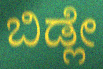
ಬಿಡ್ಲೇ